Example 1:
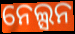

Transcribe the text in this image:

ନେଲ୍ସନ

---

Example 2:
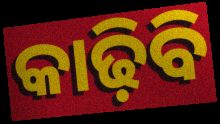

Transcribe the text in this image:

କାଢ଼ିବି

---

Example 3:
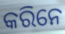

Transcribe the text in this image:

କରିନେ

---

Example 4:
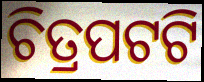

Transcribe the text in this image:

ଚିତ୍ରପଟଟି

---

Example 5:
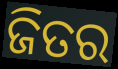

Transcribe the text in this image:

ଜିତର